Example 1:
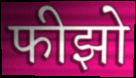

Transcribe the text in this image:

फीझो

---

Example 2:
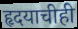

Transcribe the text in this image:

हृदयाचीही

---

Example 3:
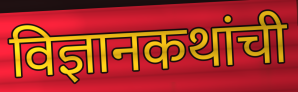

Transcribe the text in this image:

विज्ञानकथांची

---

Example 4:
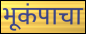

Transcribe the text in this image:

भूकंपाचा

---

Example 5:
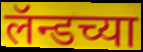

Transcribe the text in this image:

लॅन्डच्या